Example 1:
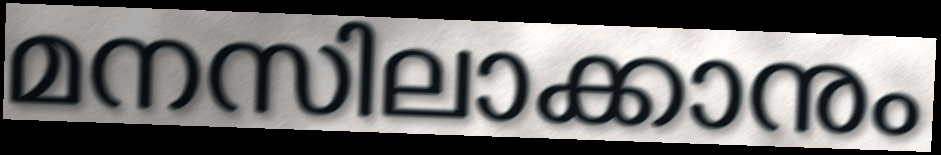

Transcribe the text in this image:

മനസിലാക്കാനും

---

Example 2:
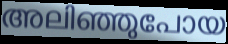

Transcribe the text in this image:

അലിഞ്ഞുപോയ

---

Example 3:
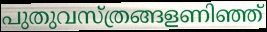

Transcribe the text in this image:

പുതുവസ്ത്രങ്ങളണിഞ്ഞ്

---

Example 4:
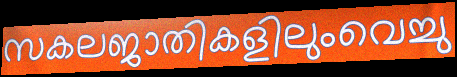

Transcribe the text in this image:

സകലജാതികളിലുംവെച്ചു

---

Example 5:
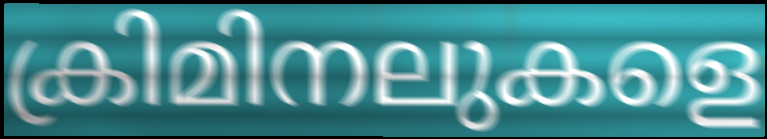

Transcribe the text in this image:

ക്രിമിനലുകളെ